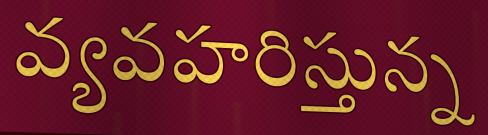
వ్యవహరిస్తున్న